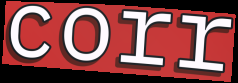
corr